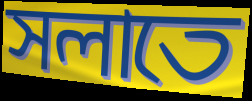
সলাতে